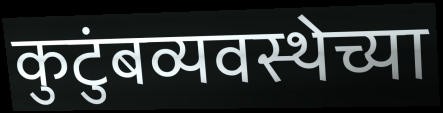
कुटुंबव्यवस्थेच्या